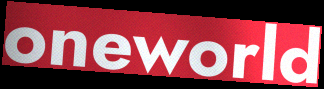
oneworld